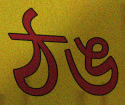
ঠঙ